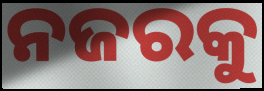
ନଜରକୁ